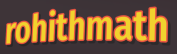
rohithmath